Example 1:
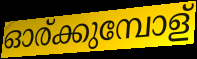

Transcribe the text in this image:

ഓര്ക്കുമ്പോള്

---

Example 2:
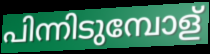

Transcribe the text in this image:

പിന്നിടുമ്പോള്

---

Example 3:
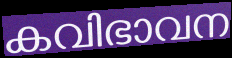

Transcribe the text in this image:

കവിഭാവന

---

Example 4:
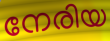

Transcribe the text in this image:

നേരിയ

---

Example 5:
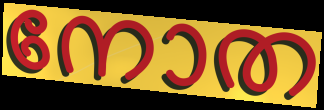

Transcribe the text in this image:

നോത